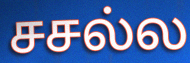
சசல்ல